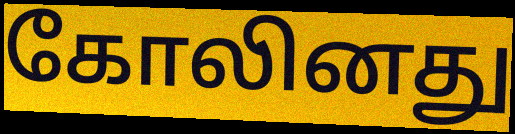
கோலினது